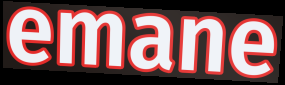
emane